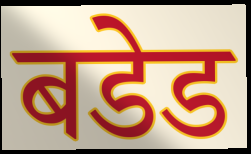
बडेड